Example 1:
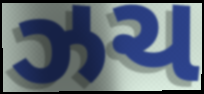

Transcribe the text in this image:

ઝચ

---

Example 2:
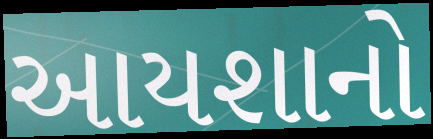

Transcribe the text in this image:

આયશાનો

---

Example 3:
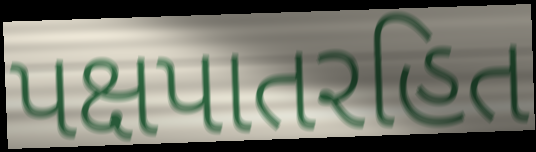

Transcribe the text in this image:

પક્ષપાતરહિત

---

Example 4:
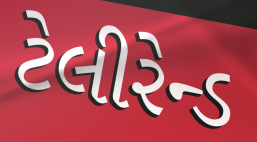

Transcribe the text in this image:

ટેલીરેન્ડ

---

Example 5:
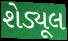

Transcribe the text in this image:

શેડ્યૂલ